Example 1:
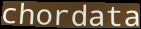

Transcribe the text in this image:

chordata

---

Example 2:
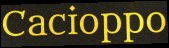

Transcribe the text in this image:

Cacioppo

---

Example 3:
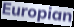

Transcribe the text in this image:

Europian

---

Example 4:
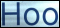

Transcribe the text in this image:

Hoo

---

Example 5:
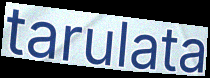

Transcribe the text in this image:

tarulata